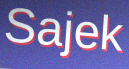
Sajek